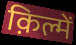
क़िल्में